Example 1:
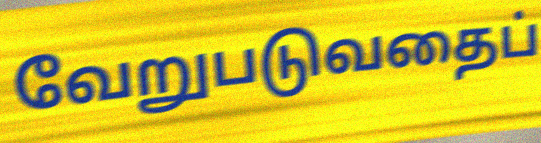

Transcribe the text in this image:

வேறுபடுவதைப்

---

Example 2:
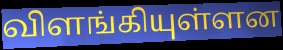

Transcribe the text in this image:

விளங்கியுள்ளன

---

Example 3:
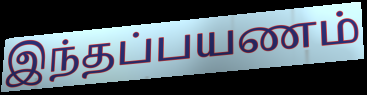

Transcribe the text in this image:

இந்தப்பயணம்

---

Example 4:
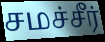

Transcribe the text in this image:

சமச்சீர்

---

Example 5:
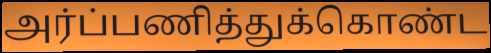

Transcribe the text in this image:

அர்ப்பணித்துக்கொண்ட